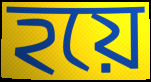
হয়ে